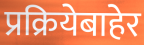
प्रक्रियेबाहेर